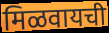
मिळवायची